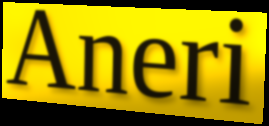
Aneri